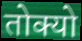
तोक्यो